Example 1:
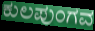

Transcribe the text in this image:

ಕುಲಪುಂಗವ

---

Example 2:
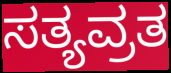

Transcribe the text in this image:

ಸತ್ಯವ್ರತ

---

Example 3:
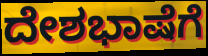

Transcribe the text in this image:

ದೇಶಭಾಷೆಗೆ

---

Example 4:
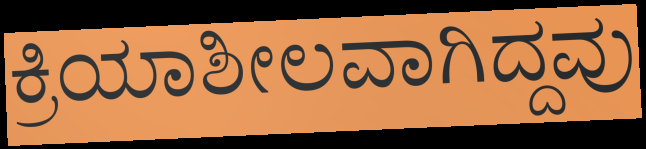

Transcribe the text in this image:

ಕ್ರಿಯಾಶೀಲವಾಗಿದ್ದವು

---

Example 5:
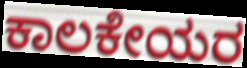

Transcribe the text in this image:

ಕಾಲಕೇಯರ